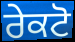
ਰੇਕਟੋ